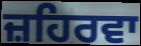
ਜ਼ਹਿਰਵਾ